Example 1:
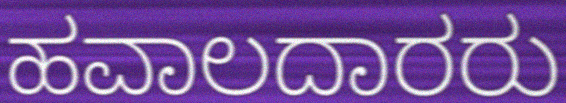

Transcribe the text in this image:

ಹವಾಲದಾರರು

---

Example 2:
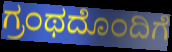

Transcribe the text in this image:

ಗ್ರಂಥದೊಂದಿಗೆ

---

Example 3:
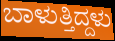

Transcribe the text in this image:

ಬಾಳುತ್ತಿದ್ದಳು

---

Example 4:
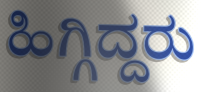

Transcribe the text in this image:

ಹಿಗ್ಗಿದ್ದರು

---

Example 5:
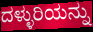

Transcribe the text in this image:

ದಳ್ಳುರಿಯನ್ನು